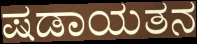
ಷಡಾಯತನ